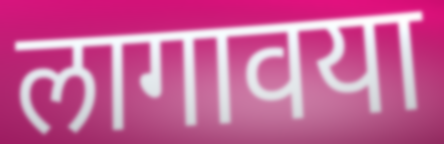
लागावया